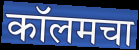
कॉलमचा